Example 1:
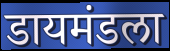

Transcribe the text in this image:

डायमंडला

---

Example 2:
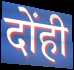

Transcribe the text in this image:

दोंही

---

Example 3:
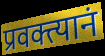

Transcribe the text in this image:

प्रवक्त्यानं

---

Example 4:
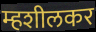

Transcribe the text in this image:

म्हशीलकर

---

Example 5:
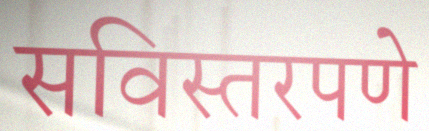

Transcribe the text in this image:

सविस्तरपणे